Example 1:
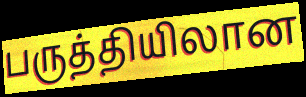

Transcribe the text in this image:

பருத்தியிலான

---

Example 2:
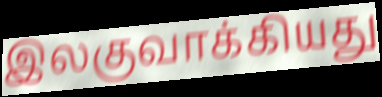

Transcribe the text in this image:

இலகுவாக்கியது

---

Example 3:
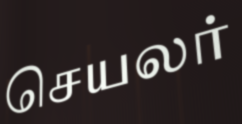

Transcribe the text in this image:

செயலர்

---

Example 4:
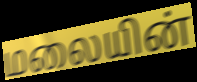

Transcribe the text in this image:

மலையின்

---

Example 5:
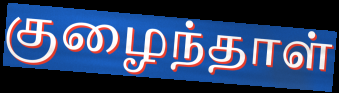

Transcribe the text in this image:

குழைந்தாள்